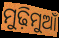
ମୁଢ଼ିମୁଆଁ